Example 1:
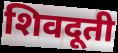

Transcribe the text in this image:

शिवदूती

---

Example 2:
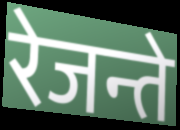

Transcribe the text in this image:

रेजन्ते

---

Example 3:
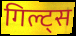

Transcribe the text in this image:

गिल्ट्स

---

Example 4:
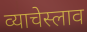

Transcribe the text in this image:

व्याचेस्लाव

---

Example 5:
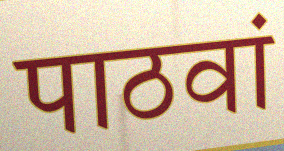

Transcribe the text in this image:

पाठवां